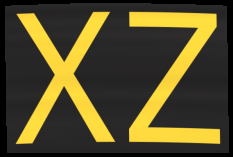
XZ